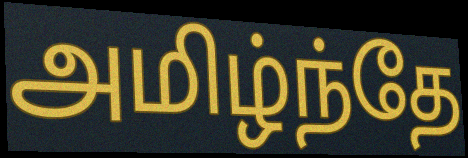
அமிழ்ந்தே